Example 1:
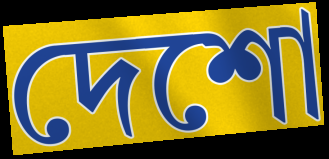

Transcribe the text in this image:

দেশো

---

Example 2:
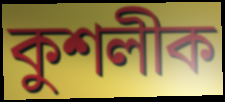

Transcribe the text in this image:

কুশলীক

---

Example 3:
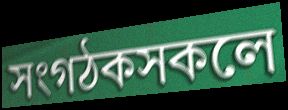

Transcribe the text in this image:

সংগঠকসকলে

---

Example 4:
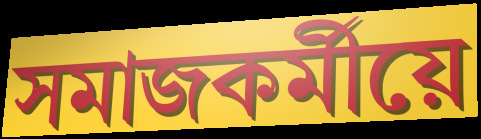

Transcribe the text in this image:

সমাজকৰ্মীয়ে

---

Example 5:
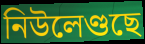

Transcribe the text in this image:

নিউলেণ্ডছে